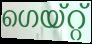
ഗെയ്റ്റ്